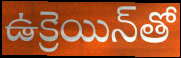
ఉక్రెయిన్‌తో